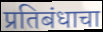
प्रतिबंधाचा